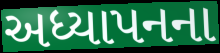
અધ્યાપનના